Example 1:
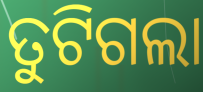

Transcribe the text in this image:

ତୁଟିଗଲା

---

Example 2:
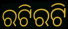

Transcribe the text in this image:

ରଟିରଟି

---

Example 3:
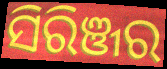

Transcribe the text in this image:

ସିରିଞ୍ଜର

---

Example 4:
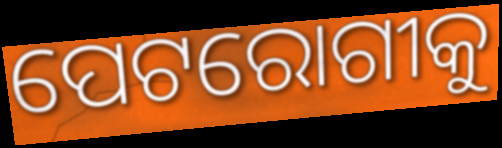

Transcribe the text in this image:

ପେଟରୋଗୀକୁ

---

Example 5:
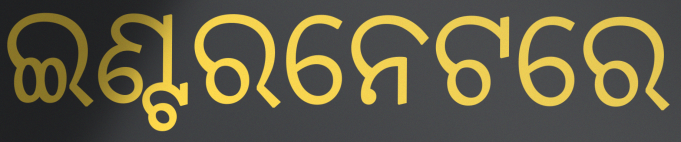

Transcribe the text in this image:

ଇଣ୍ଟରନେଟରେ